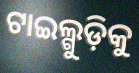
ଟାଇଲ୍ଗୁଡ଼ିକୁ